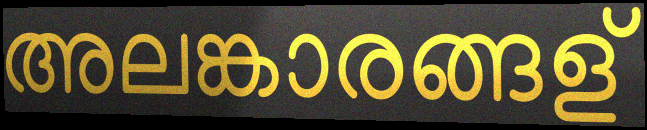
അലങ്കാരങ്ങള്